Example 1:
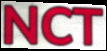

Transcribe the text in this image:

NCT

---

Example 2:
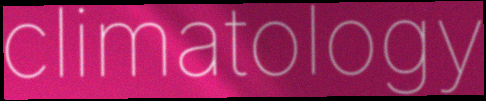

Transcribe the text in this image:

climatology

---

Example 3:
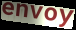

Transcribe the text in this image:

envoy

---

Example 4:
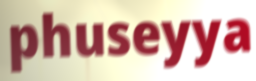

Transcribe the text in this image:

phuseyya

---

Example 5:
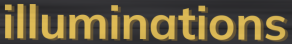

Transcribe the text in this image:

illuminations